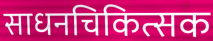
साधनचिकित्सक